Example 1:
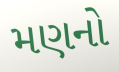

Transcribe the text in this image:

મણનો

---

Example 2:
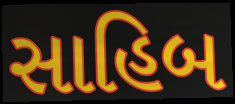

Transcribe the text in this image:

સાહિબ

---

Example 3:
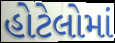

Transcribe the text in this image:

હોટેલોમાં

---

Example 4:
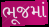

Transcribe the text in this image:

ભૂજમાં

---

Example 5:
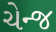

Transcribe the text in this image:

ચેન્જ